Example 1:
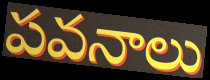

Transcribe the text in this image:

పవనాలు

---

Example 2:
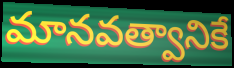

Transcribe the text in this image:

మానవత్వానికే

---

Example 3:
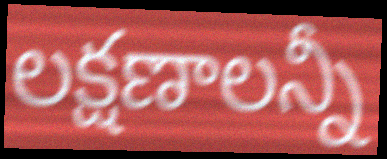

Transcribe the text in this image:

లక్షణాలన్నీ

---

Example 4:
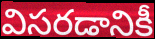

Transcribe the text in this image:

విసరడానికీ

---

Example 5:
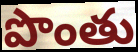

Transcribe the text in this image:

పొంతు